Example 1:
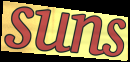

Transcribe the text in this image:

suns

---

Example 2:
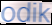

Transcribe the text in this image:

odik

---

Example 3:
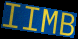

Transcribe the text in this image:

IIMB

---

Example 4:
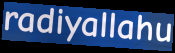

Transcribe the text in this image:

radiyallahu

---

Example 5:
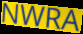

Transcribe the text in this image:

NWRA